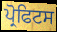
ਪ੍ਰੋਫਿਟਸ